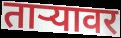
ताऱ्यावर